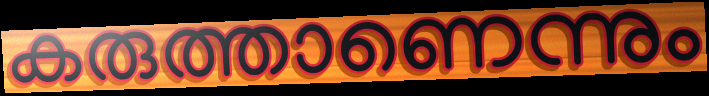
കരുത്താണെന്നും